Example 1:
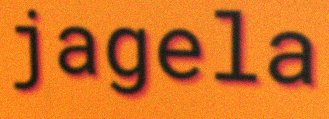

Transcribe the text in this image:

jagela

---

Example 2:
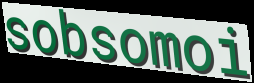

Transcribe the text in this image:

sobsomoi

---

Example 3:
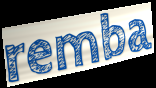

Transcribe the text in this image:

remba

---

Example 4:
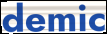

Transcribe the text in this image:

demic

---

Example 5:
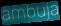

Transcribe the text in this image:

ambuja